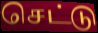
செட்டு